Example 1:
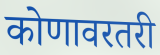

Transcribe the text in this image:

कोणावरतरी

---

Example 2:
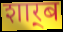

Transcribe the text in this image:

शार्ब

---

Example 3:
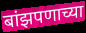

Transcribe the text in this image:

बांझपणाच्या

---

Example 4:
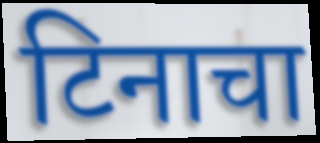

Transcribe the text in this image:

टिनाचा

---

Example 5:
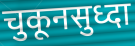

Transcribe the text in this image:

चुकूनसुध्दा